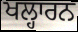
ਖਲ੍ਹਾਰਨ